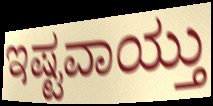
ಇಷ್ಟವಾಯ್ತು